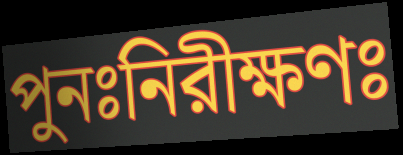
পুনঃনিরীক্ষণঃ